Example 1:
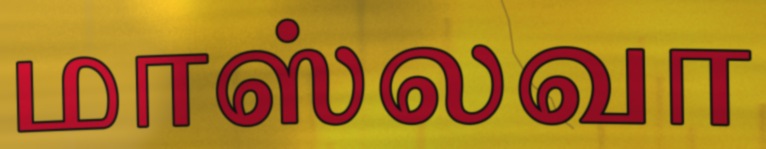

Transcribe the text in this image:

மாஸ்லவா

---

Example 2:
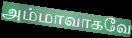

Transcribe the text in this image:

அம்மாவாகவே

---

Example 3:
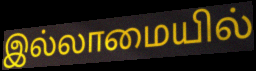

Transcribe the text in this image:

இல்லாமையில்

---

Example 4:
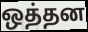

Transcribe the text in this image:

ஒத்தன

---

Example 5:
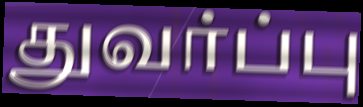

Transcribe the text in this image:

துவர்ப்பு